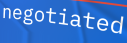
negotiated